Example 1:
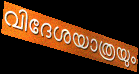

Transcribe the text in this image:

വിദേശയാത്രയും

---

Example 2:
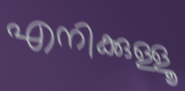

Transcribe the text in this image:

എനിക്കുള്ളൂ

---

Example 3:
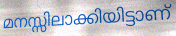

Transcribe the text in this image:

മനസ്സിലാക്കിയിട്ടാണ്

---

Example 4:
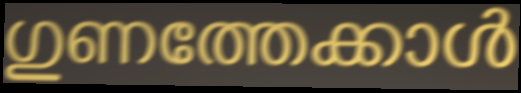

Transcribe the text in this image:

ഗുണത്തേക്കാൾ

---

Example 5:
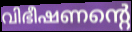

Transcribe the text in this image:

വിഭീഷണന്റെ